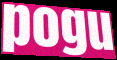
pogu